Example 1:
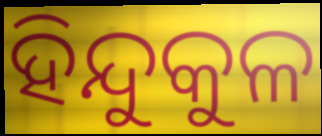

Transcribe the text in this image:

ହିନ୍ଦୁକୁଳ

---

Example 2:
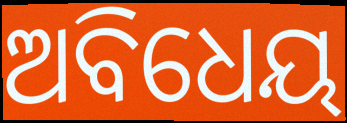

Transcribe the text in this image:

ଅବିଧେୟ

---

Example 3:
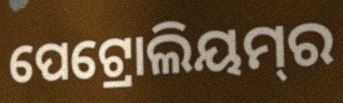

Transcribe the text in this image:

ପେଟ୍ରୋଲିୟମ୍‌ର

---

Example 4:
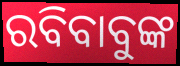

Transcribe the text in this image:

ରବିବାବୁଙ୍କ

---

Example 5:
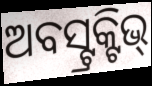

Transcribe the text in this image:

ଅବସ୍ଟ୍ରକ୍ଟିଭ୍